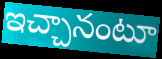
ఇచ్చానంటూ